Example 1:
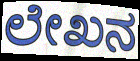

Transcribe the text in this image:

ಲೇಖನ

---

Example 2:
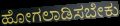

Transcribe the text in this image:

ಹೋಗಲಾಡಿಸಬೇಕು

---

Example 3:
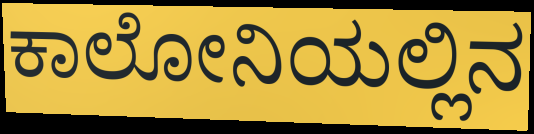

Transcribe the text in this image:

ಕಾಲೋನಿಯಲ್ಲಿನ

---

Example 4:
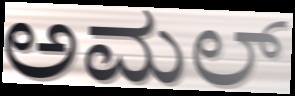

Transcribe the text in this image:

ಅಮಲ್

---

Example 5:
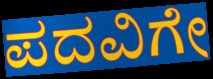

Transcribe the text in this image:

ಪದವಿಗೇ